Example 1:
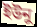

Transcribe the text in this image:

ইউনু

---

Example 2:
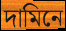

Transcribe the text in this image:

দামিনে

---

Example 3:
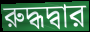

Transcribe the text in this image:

রুদ্ধদ্বার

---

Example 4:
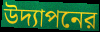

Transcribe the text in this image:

উদ্যাপনের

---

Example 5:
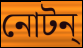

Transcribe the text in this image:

নোটন্